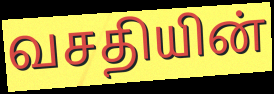
வசதியின்